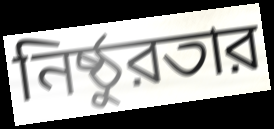
নিষ্ঠুরতার